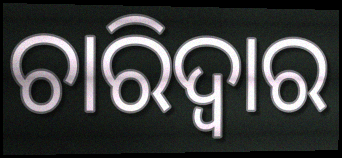
ଚାରିଦ୍ୱାର